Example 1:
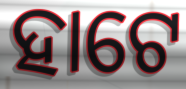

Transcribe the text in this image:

ହାଟେ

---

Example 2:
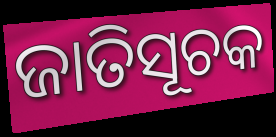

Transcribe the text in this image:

ଜାତିସୂଚକ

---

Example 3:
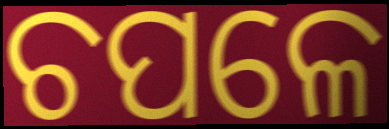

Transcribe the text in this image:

ଚପଳେ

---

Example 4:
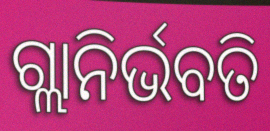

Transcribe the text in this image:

ଗ୍ଲାନିର୍ଭବତି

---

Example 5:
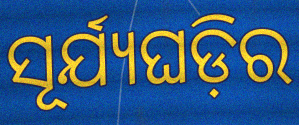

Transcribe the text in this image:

ସୂର୍ଯ୍ୟଘଡ଼ିର